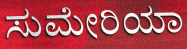
ಸುಮೇರಿಯಾ